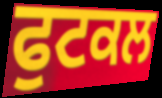
ਫੁਟਕਲ